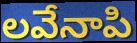
లవేనాపి